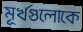
মূর্খগুলোকে